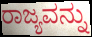
ರಾಜ್ಯವನ್ನು